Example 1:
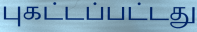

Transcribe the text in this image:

புகட்டப்பட்டது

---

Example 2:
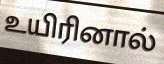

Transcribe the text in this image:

உயிரினால்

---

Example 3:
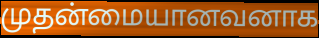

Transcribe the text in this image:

முதன்மையானவனாக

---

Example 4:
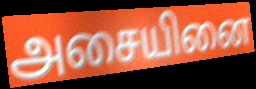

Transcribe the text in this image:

அசையினை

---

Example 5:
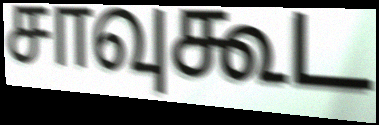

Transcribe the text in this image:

சாவுகூட